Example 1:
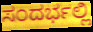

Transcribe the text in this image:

ಸಂದರ್ಭಲ್ಲಿ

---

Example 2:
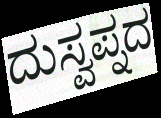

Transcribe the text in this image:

ದುಸ್ವಪ್ನದ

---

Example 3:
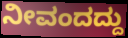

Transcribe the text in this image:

ನೀವಂದದ್ದು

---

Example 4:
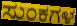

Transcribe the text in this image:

ಸುಂಕಗಳ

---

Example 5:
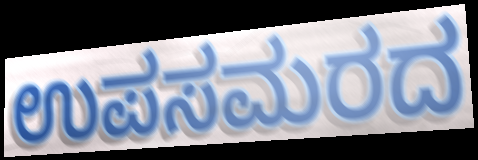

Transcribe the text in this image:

ಉಪಸಮರದ